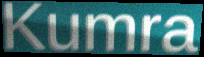
Kumra